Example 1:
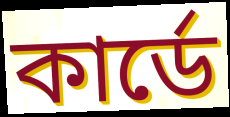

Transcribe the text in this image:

কার্ডে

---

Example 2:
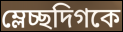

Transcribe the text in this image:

ম্লেচ্ছদিগকে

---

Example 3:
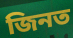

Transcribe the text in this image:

জিনত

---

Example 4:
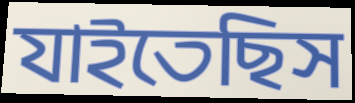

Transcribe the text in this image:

যাইতেছিস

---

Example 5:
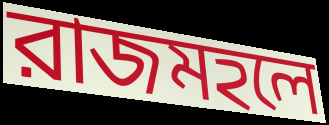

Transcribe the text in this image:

রাজমহলে